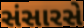
સંસારસે